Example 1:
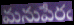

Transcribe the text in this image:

మనుపేరఁ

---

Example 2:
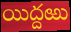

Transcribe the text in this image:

యిద్దఱు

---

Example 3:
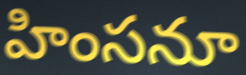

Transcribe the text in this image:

హింసనూ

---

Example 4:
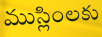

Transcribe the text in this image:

ముస్లింలకు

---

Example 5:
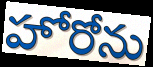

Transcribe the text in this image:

హోరోను